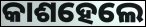
କାଶହେଲେ